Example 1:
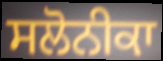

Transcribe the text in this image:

ਸਲੋਨੀਕਾ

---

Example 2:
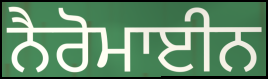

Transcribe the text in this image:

ਨੈਰੋਮਾਈਨ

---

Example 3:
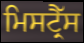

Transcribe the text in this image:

ਮਿਸਟ੍ਰੈੱਸ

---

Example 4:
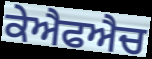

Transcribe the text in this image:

ਕੇਐਫਐਚ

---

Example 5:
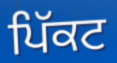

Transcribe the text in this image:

ਪਿੱਕਟ